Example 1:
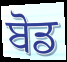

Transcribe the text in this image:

ਬੋਡ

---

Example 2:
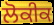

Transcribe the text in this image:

ਲੋਕੀਕ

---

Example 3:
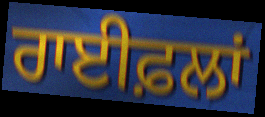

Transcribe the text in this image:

ਰਾਈਫ਼ਲਾਂ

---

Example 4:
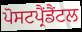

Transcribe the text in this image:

ਪੋਸਟਪ੍ਰੈਂਡੈਂਟਲ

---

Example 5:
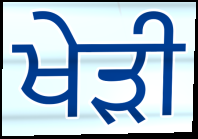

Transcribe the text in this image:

ਖੇੜੀ